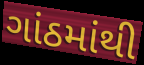
ગાંઠમાંથી